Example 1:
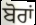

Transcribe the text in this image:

ਬੋਰਾਂ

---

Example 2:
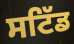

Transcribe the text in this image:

ਸਟਿੱਡ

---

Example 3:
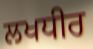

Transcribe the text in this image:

ਲਖਧੀਰ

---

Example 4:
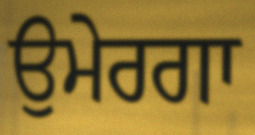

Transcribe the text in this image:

ਉਮੇਰਗਾ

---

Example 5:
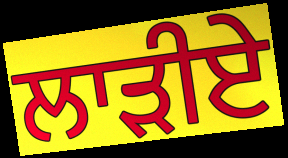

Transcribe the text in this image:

ਲਾੜੀਏ